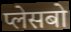
प्लेसबो